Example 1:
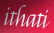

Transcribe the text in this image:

ithati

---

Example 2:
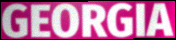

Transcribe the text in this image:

GEORGIA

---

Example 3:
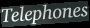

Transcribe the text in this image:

Telephones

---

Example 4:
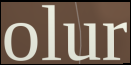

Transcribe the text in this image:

olur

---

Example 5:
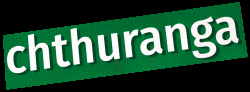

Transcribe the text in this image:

chthuranga